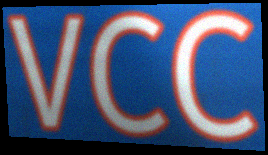
VCC